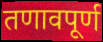
तणावपूर्ण